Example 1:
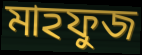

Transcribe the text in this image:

মাহফুজ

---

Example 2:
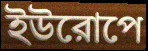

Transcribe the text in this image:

ইউরোপে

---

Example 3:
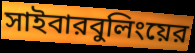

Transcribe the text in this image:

সাইবারবুলিংয়ের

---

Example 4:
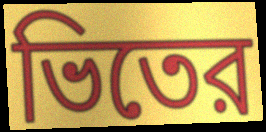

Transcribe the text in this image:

ভিতের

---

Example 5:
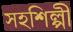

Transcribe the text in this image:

সহশিল্পী